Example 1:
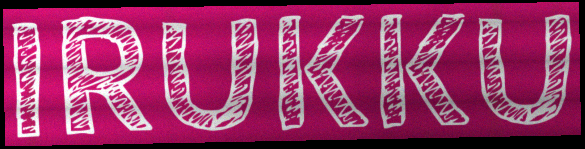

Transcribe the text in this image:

IRUKKU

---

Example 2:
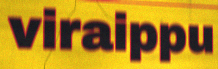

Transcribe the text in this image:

viraippu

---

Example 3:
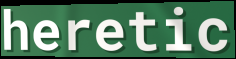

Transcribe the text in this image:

heretic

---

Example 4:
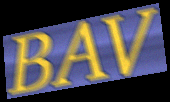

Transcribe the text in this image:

BAV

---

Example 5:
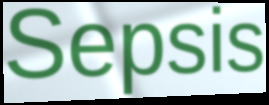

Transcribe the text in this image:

Sepsis